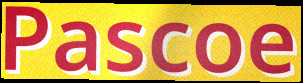
Pascoe